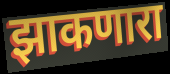
झाकणारा